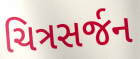
ચિત્રસર્જન